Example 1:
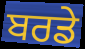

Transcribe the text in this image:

ਬਰਡੇ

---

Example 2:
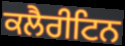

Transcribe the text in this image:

ਕਲੈਰੀਟਿਨ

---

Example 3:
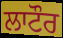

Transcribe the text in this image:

ਲਾਟੌਰ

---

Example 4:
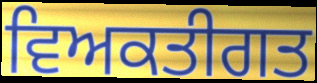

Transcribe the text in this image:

ਵਿਅਕਤੀਗਤ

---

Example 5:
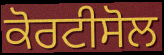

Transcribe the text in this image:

ਕੋਰਟੀਸੋਲ